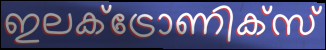
ഇലക്ട്രോണിക്സ്